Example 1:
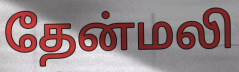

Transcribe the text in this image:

தேன்மலி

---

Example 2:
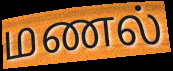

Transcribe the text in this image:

மணல்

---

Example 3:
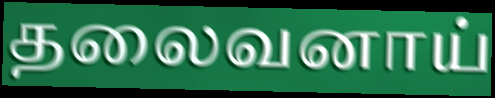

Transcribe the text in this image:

தலைவனாய்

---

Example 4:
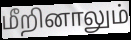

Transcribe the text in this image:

மீறினாலும்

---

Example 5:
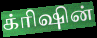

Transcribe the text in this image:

க்ரிஷின்